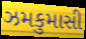
ઝમકુમાસી